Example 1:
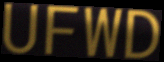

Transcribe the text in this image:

UFWD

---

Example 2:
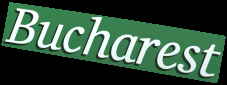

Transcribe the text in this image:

Bucharest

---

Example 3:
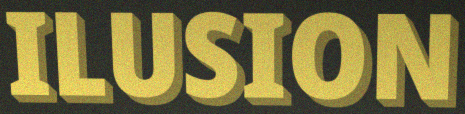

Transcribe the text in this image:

ILUSION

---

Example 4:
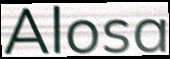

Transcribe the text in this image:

Alosa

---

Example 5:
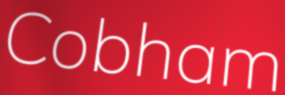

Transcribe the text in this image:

Cobham